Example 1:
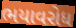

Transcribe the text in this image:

ભયાવરોધ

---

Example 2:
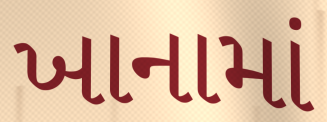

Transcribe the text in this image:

ખાનામાં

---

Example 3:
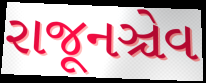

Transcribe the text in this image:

રાજૂનઞ્ચેવ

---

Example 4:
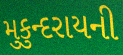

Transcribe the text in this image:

મુકુન્દરાયની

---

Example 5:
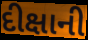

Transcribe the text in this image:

દીક્ષાની